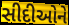
સીદીઓને